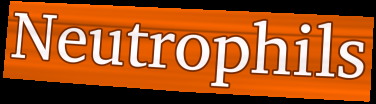
Neutrophils